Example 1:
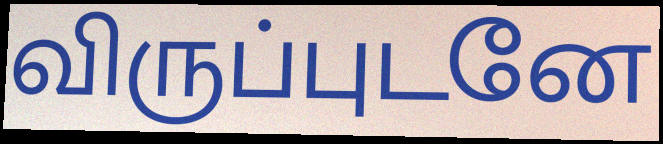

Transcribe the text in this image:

விருப்புடனே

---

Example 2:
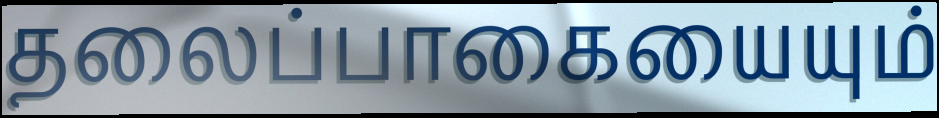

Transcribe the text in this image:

தலைப்பாகையையும்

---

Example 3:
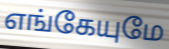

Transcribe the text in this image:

எங்கேயுமே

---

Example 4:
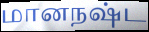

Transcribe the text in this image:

மானநஷ்ட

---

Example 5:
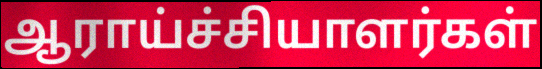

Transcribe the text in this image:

ஆராய்ச்சியாளர்கள்